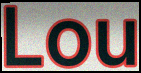
Lou